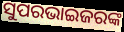
ସୁପରଭାଇଜରଙ୍କ